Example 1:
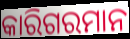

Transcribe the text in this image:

କାରିଗରମାନ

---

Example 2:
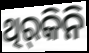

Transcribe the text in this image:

ଥିର୍‍କିନି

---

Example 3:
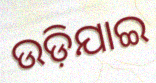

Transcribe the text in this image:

ଉଡ଼ିଯାଇ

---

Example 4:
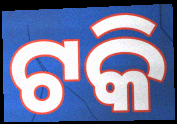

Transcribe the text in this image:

ଟକି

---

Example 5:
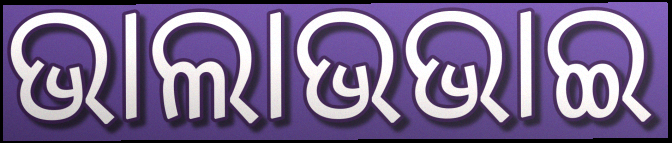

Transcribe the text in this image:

ଭାଲାଭଭାଇ